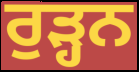
ਰੁੜ੍ਹਨ